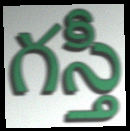
గస్తీ